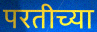
परतीच्या